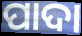
ପାଦା